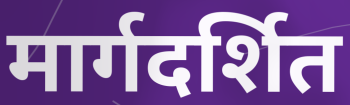
मार्गदर्शित